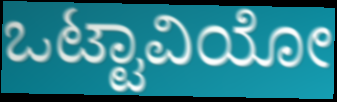
ಒಟ್ಟಾವಿಯೋ